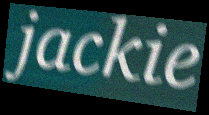
jackie